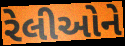
રેલીઓને